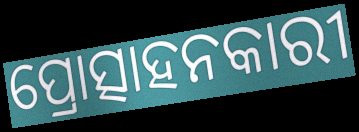
ପ୍ରୋତ୍ସାହନକାରୀ